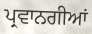
ਪ੍ਰਵਾਨਗੀਆਂ